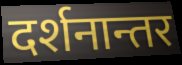
दर्शनान्तर